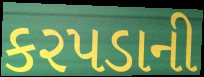
કરપડાની